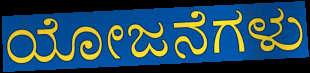
ಯೋಜನೆಗಳು